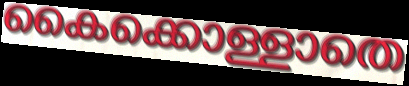
കൈക്കൊള്ളാതെ